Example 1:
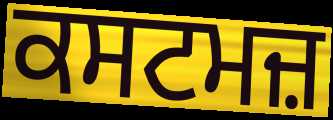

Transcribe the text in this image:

ਕਸਟਮਜ਼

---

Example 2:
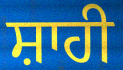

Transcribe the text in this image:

ਸ਼ਾਹੀ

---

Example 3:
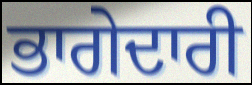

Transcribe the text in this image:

ਭਾਗੇਦਾਰੀ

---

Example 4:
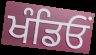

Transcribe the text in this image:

ਖੰਡਿਓਂ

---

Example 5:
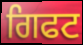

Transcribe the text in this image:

ਗਿਫਟ